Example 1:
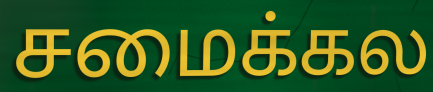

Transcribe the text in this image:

சமைக்கல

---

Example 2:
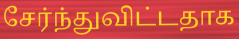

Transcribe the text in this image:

சேர்ந்துவிட்டதாக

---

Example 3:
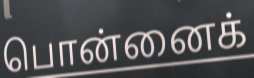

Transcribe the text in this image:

பொன்னைக்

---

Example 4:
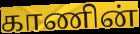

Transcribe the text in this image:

காணின்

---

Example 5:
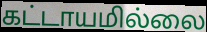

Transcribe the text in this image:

கட்டாயமில்லை